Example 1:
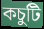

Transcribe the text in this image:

কচুটি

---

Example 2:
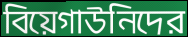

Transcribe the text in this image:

বিয়েগাউনিদের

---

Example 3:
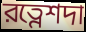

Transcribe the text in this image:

রত্নেশদা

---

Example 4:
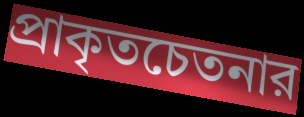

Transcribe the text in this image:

প্রাকৃতচেতনার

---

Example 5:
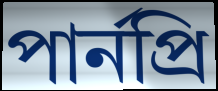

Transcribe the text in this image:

পার্নপ্রি